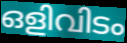
ഒളിവിടം